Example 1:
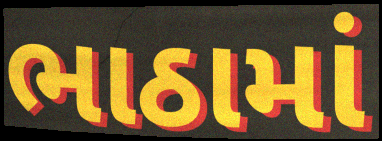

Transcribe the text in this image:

ભાઠામાં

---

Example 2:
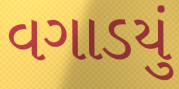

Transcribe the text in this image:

વગાડયું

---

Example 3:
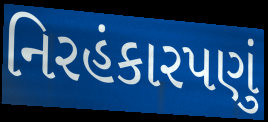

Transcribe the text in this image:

નિરહંકારપણું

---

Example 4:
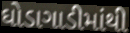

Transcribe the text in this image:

ઘોડાગાડીમાંથી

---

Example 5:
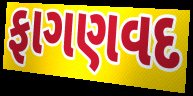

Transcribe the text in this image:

ફાગણવદ